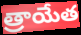
త్రాయేత